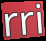
rri